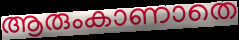
ആരുംകാണാതെ